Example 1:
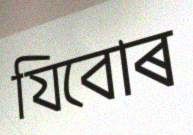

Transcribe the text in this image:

যিবোৰ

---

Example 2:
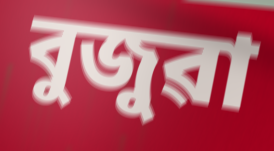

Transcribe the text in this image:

বুজুৱা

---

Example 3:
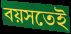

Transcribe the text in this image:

বয়সতেই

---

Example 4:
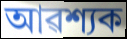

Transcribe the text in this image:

আৱশ্যক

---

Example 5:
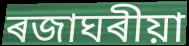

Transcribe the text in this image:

ৰজাঘৰীয়া